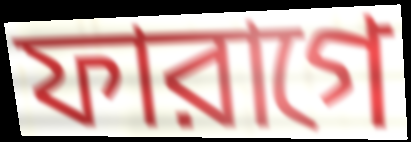
ফারাগে